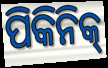
ପିକିନିକ୍